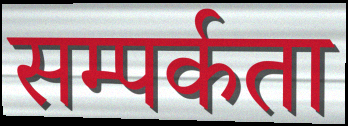
सम्पर्कता